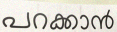
പറക്കാൻ